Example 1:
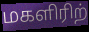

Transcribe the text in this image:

மகளிரிற்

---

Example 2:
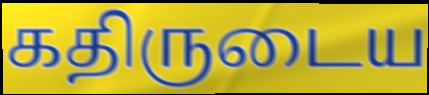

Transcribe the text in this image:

கதிருடைய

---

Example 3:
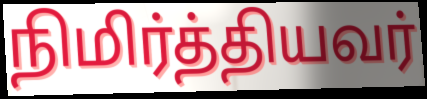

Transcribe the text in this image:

நிமிர்த்தியவர்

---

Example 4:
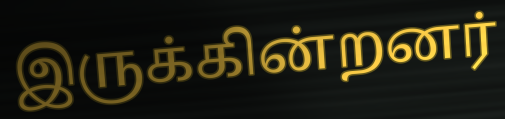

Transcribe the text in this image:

இருக்கின்றனர்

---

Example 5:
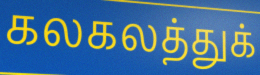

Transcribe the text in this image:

கலகலத்துக்